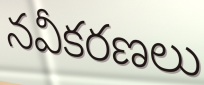
నవీకరణలు